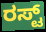
ರಸ್ಟ್